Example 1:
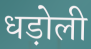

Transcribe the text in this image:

धड़ोली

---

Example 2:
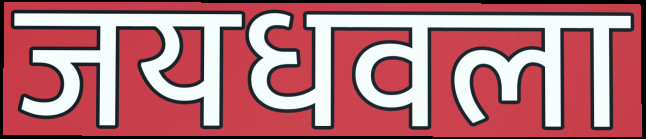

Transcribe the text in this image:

जयधवला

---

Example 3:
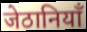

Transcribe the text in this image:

जेठानियाँ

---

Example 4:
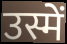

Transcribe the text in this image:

उस्में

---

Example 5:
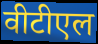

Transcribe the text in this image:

वीटीएल